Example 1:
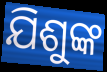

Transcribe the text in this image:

ଯିଶୁଙ୍କ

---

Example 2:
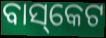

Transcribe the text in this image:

ବାସ୍‌କେଟ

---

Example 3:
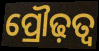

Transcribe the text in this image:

ପ୍ରୌଢ଼ତ୍ୱ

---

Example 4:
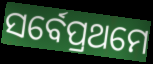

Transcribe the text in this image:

ସର୍ବେପ୍ରଥମେ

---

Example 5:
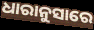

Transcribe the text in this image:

ଧାରାନୁସାରେ